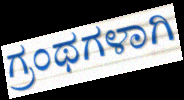
ಗ್ರಂಥಗಳಾಗಿ